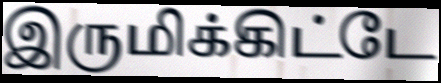
இருமிக்கிட்டே